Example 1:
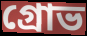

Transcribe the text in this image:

গ্রোভ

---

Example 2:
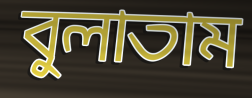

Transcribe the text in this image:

বুলাতাম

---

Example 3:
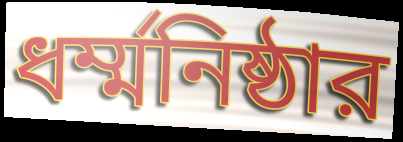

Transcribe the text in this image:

ধর্ম্মনিষ্ঠার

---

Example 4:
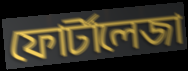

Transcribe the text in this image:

ফোর্টালেজা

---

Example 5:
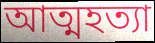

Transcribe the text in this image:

আত্মহত্যা